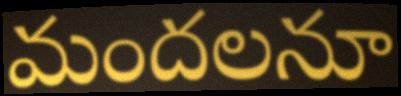
మందలనూ